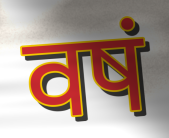
वषं